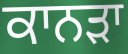
ਕਾਨੜਾ